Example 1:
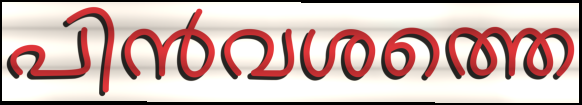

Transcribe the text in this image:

പിൻവശത്തെ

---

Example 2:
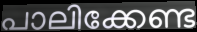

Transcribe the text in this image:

പാലിക്കേണ്ട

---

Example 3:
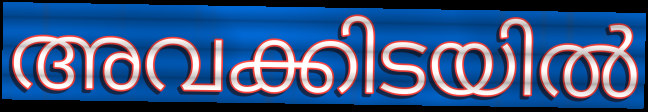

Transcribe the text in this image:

അവക്കിടയിൽ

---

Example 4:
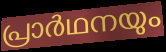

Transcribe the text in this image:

പ്രാർഥനയും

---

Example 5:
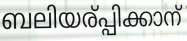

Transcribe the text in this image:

ബലിയര്പ്പിക്കാന്